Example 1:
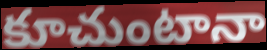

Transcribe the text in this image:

కూచుంటానా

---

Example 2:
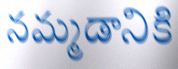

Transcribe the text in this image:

నమ్మడానికి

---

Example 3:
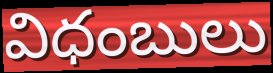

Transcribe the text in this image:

విధంబులు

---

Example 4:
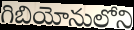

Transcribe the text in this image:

గిబియోనులోని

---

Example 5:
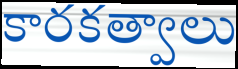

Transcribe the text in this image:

కారకత్వాలు